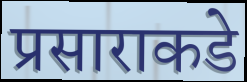
प्रसाराकडे